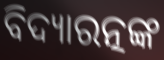
ବିଦ୍ୟାରତ୍ନଙ୍କ